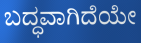
ಬದ್ಧವಾಗಿದೆಯೇ